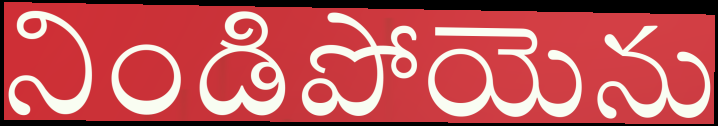
నిండిపోయెను